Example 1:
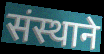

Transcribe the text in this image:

संस्थाने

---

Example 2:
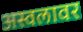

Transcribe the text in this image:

अस्वलावर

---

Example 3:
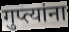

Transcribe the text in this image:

गुप्त्यांना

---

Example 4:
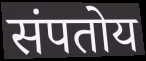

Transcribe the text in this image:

संपतोय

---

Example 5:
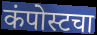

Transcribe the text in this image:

कंपोस्टचा